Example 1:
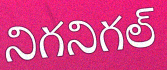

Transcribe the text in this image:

నిగనిగల్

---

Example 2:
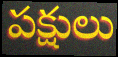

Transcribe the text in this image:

పక్షులు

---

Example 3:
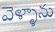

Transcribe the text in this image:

వెళ్ళాను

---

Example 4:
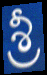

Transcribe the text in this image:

శ్రీ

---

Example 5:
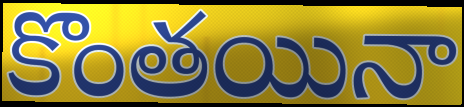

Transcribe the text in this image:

కొంతయినా